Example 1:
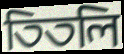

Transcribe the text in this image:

তিতলি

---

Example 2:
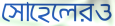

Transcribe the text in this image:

সোহেলেরও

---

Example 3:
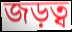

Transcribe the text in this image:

জড়ত্ব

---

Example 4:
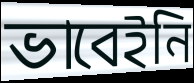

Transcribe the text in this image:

ভাবেইনি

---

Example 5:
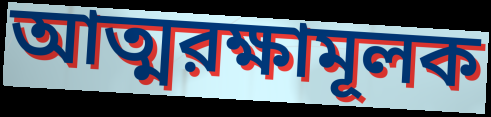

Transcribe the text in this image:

আত্মরক্ষামূলক